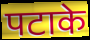
पटाके